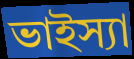
ভাইস্যা